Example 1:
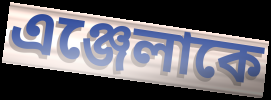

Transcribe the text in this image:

এঞ্জেলাকে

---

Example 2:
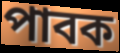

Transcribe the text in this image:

পাবক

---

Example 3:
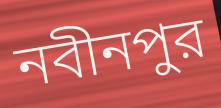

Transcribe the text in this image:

নবীনপুর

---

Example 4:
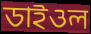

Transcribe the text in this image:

ডাইওল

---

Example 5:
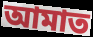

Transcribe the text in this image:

আমাত